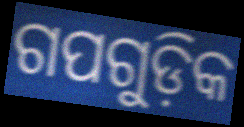
ଗପଗୁଡ଼ିକ